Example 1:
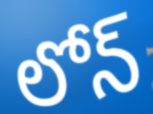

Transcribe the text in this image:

లోన్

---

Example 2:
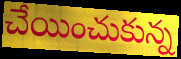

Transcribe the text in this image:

చేయించుకున్న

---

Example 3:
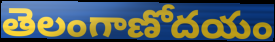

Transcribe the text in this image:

తెలంగాణోదయం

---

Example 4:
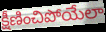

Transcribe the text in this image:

క్షీణించిపోయేలా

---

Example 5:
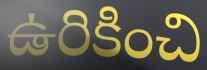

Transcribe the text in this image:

ఉరికించి